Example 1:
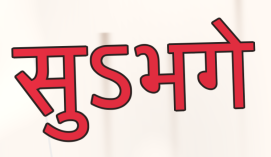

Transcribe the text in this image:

सुऽभगे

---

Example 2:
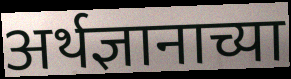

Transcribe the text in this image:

अर्थज्ञानाच्या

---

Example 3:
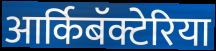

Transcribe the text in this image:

आर्किबॅक्टेरिया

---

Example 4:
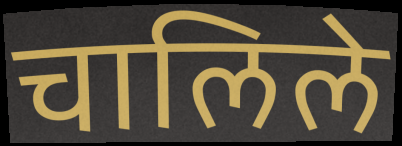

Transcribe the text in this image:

चालिले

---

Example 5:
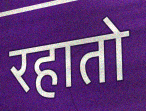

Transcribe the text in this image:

रहातो